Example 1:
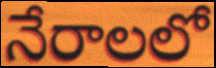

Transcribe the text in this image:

నేరాలలో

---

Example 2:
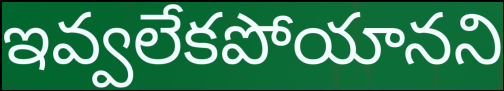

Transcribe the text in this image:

ఇవ్వలేకపోయానని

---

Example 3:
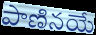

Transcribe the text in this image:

పాణినయే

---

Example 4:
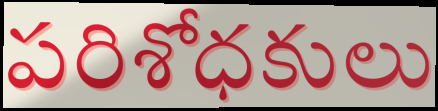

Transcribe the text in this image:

పరిశోధకులు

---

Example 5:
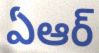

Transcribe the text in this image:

ఏఆర్